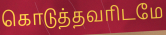
கொடுத்தவரிடமே